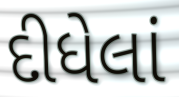
દીધેલાં